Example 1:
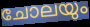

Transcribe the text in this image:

ചോലയും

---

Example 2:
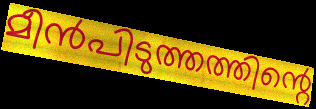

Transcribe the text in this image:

മീൻപിടുത്തത്തിന്റെ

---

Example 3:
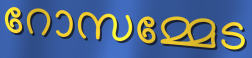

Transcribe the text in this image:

റോസമ്മേട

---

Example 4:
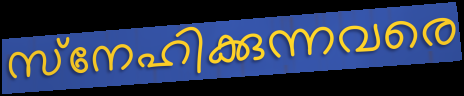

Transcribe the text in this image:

സ്‌നേഹിക്കുന്നവരെ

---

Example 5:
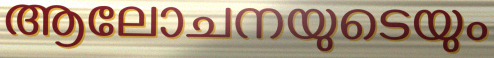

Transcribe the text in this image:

ആലോചനയുടെയും